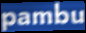
pambu